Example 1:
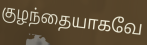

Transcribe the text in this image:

குழந்தையாகவே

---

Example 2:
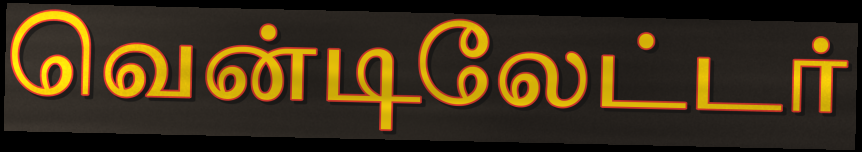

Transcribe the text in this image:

வென்டிலேட்டர்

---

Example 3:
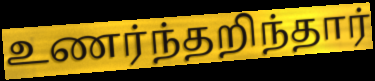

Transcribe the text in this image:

உணர்ந்தறிந்தார்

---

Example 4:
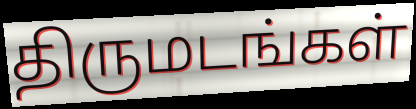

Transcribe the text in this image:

திருமடங்கள்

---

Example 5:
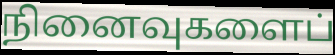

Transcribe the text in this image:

நினைவுகளைப்